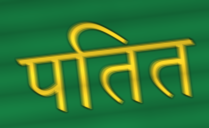
पतित